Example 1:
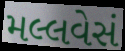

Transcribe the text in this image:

મલ્લવેસં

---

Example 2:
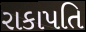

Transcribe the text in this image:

રાકાપતિ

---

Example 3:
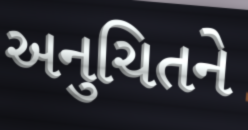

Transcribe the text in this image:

અનુચિતને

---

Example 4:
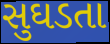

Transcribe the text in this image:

સુઘડતા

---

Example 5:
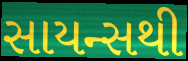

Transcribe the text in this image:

સાયન્સથી